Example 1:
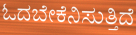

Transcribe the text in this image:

ಓದಬೇಕೆನಿಸುತ್ತಿದೆ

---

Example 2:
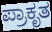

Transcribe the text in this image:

ಪ್ರಾಕೃತ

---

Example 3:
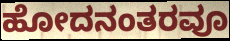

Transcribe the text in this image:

ಹೋದನಂತರವೂ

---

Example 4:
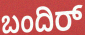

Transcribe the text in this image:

ಬಂದಿರ್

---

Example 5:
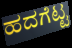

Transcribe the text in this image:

ಹದಗೆಟ್ಟ